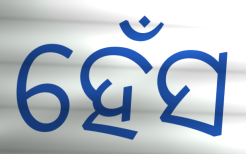
ହେଁସ